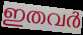
ഇതവർ